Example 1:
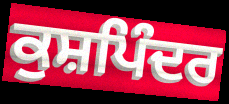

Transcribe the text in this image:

ਕੁਸ਼ਪਿੰਦਰ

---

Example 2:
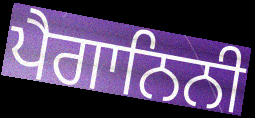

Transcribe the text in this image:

ਪੈਗਾਨਿਨੀ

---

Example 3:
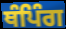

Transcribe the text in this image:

ਥੰਪਿੰਗ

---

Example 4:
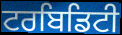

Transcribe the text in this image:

ਟਰਬਿਡਿਟੀ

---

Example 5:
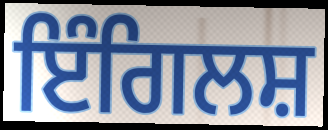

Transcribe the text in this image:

ਇੰਗਿਲਸ਼